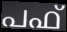
പഫ്